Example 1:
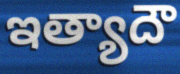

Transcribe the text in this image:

ఇత్యాదౌ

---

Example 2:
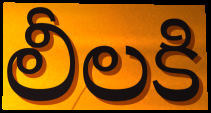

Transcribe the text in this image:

లీలకి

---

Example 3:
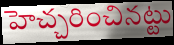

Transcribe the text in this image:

హెచ్చరించినట్టు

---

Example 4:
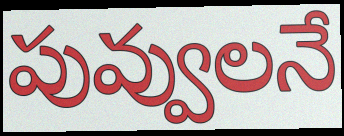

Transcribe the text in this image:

పువ్వులనే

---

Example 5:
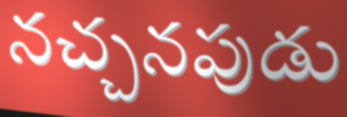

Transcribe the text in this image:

నచ్చనపుడు